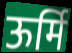
ऊर्मि